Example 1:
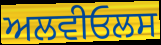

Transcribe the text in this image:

ਅਲਵੀਓਲਸ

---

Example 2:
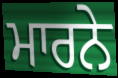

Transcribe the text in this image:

ਮਾਰਨੇ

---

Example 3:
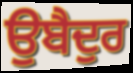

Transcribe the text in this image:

ਉਬੈਦੁਰ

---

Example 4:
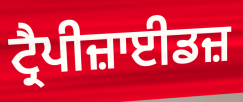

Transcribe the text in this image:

ਟ੍ਰੈਪੀਜ਼ਾਈਡਜ਼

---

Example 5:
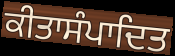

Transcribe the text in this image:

ਕੀਤਾਸੰਪਾਦਿਤ